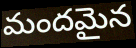
మందమైన